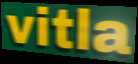
vitla